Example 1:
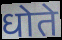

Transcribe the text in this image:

धोते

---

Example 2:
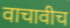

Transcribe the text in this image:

वाचावीच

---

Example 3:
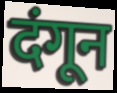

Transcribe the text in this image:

दंगून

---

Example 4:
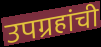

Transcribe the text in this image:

उपग्रहांची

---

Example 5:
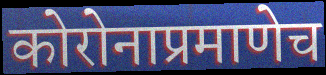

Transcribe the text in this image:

कोरोनाप्रमाणेच